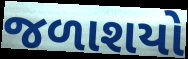
જળાશયો